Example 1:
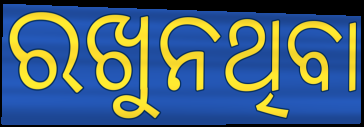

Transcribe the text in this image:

ରଖୁନଥିବା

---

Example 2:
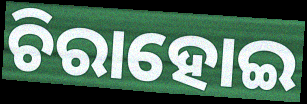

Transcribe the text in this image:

ଚିରାହୋଇ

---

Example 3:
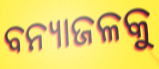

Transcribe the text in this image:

ବନ୍ୟାଜଳକୁ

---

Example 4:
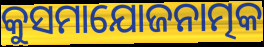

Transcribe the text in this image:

କୁସମାଯୋଜନାତ୍ମକ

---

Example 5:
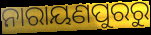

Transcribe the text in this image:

ନାରାୟଣପୁରରୁ